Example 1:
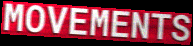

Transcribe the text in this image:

MOVEMENTS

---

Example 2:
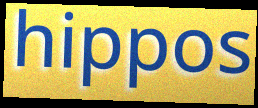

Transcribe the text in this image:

hippos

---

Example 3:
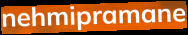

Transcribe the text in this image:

nehmipramane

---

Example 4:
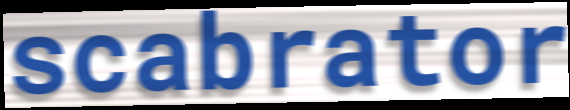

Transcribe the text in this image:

scabrator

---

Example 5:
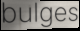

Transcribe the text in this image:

bulges